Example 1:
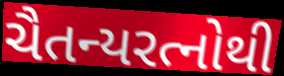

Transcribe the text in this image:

ચૈતન્યરત્નોથી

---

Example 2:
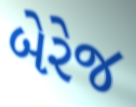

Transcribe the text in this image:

બેરેજ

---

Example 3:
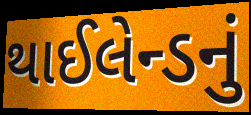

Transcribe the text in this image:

થાઈલેન્ડનું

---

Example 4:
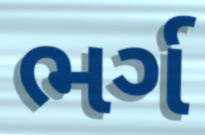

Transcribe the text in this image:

ભર્ગ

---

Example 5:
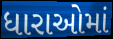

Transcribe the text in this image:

ધારાઓમાં